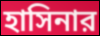
হাসিনার